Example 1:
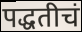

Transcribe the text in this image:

पद्धतीचं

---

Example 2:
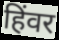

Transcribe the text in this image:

हिंवर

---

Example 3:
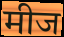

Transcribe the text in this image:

मीज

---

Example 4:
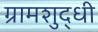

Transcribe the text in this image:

ग्रामशुद्धी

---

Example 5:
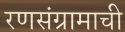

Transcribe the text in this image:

रणसंग्रामाची